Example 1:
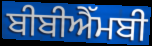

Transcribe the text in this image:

ਬੀਬੀਐੱਮਬੀ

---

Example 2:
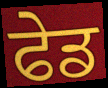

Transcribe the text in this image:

ਫੇਡ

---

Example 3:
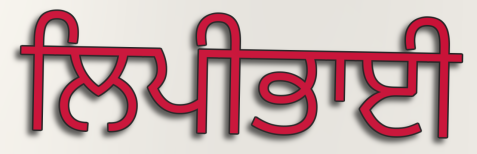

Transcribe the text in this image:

ਲਿਪੀਭਾਈ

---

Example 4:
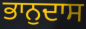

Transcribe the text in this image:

ਭਾਨੁਦਾਸ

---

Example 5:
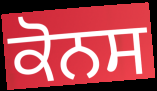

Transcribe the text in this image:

ਕੋਨਸ